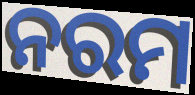
ନରମ